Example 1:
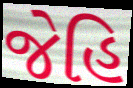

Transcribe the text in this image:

જેહિ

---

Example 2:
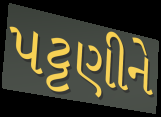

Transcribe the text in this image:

પટ્ટણીને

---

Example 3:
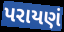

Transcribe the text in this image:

પરાયણં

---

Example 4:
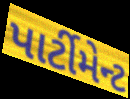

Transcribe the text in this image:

પાર્ટીમેન્ટ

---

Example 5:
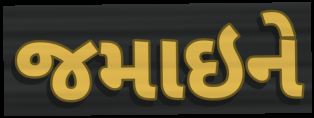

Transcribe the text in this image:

જમાઇને